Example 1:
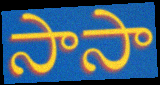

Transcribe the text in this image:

సాసా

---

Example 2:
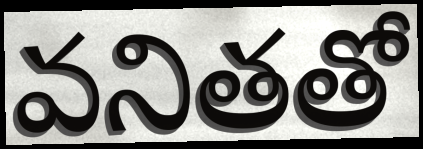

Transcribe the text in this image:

వనితతో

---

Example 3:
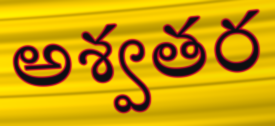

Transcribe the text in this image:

అశ్వతర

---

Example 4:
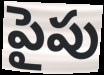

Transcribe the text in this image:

పైపు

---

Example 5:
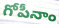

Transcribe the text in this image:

గోపీనాం